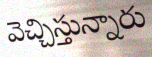
వెచ్చిస్తున్నారు